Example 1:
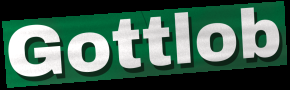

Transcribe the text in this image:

Gottlob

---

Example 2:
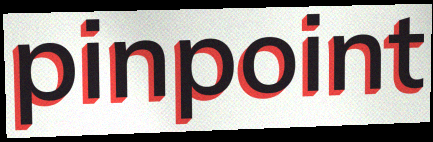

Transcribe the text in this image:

pinpoint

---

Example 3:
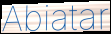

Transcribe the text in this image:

Abiatar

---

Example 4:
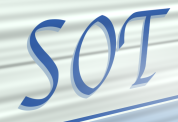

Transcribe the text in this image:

SOT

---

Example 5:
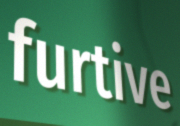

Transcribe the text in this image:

furtive